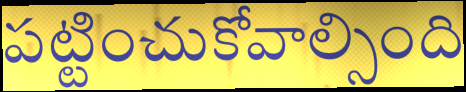
పట్టించుకోవాల్సింది